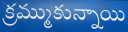
క్రమ్ముకున్నాయి